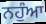
ਨਹੁੰਆ